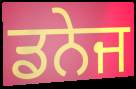
ਡਨੇਜ